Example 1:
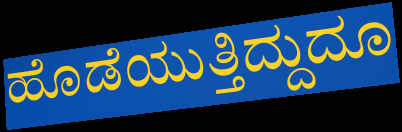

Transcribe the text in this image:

ಹೊಡೆಯುತ್ತಿದ್ದುದೂ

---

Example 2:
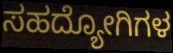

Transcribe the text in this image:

ಸಹದ್ಯೋಗಿಗಳ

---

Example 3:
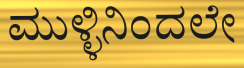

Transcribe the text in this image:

ಮುಳ್ಳಿನಿಂದಲೇ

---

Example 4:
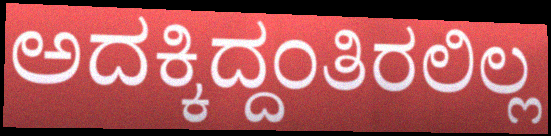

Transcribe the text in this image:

ಅದಕ್ಕಿದ್ದಂತಿರಲಿಲ್ಲ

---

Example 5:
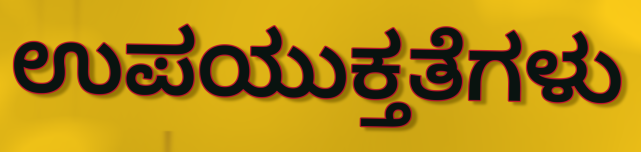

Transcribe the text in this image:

ಉಪಯುಕ್ತತೆಗಳು